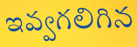
ఇవ్వగలిగిన